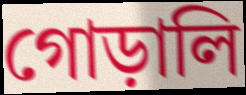
গোড়ালি